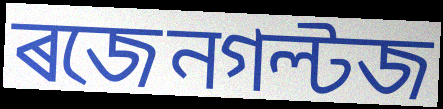
ৰজেনগল্টজ